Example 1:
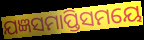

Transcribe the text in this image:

ଯଜ୍ଞସମାପ୍ତିସମୟେ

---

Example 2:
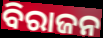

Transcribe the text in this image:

ବିରାଜନ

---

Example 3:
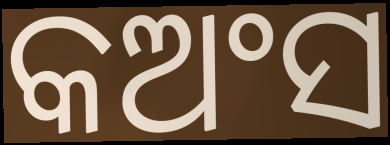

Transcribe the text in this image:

କଅଂସ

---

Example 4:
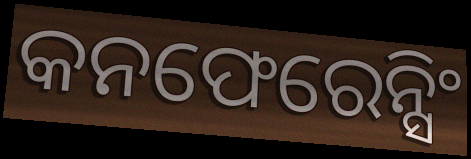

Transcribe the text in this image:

କନଫେରେନ୍ସିଂ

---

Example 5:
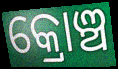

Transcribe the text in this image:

କ୍ରୋଞ୍ଚ